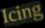
Icing